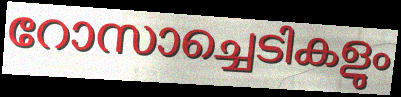
റോസാച്ചെടികളും